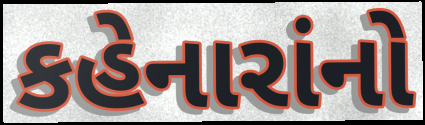
કહેનારાંનો